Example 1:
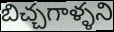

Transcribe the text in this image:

బిచ్చగాళ్ళని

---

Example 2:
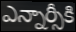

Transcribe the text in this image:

ఎన్నార్సీకి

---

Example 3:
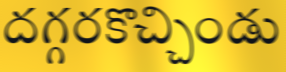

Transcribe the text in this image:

దగ్గరకొచ్చిండు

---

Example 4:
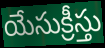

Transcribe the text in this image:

యేసుక్రీస్తు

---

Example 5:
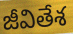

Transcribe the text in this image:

జీవితేశ